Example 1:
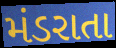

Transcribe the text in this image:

મંડરાતા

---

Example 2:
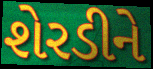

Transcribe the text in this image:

શેરડીને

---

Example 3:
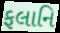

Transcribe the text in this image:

ફલાનિ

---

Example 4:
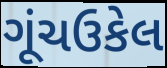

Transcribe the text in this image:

ગૂંચઉકેલ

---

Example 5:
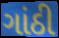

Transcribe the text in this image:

ગાંઠી